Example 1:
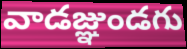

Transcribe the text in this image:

వాడజ్ఞుండగు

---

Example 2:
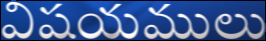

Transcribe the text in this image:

విషయములు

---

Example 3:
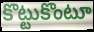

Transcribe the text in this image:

కొట్టుకొంటూ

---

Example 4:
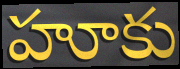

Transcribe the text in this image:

హూకు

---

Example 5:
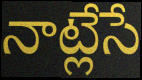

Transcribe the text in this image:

నాట్లేసే